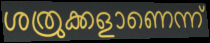
ശത്രുക്കളാണെന്ന്